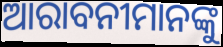
ଆରାବନୀମାନଙ୍କୁ